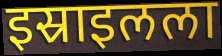
इस्राइलला